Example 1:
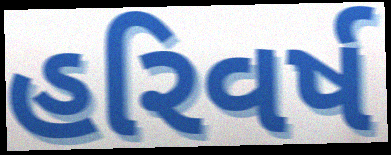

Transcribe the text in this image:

હરિવર્ષ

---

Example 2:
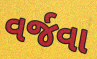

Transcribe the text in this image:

વર્જવા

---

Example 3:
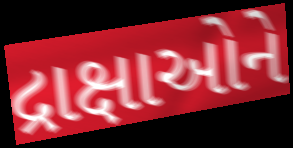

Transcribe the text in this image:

દ્રાક્ષાઓને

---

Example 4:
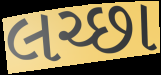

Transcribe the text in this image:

લચ્છા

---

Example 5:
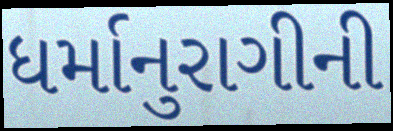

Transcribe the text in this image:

ધર્માનુરાગીની